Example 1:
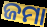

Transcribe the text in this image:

ଜମା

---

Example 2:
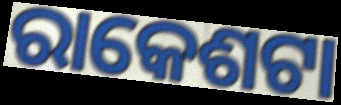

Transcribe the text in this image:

ରାକେଶଟା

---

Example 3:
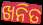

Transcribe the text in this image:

ଖନିତ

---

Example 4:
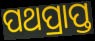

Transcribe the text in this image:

ପଥପ୍ରାପ୍ତ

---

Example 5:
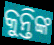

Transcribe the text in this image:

କୁନ୍ତିଙ୍କ